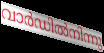
വാർഡിൽനിന്നു